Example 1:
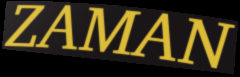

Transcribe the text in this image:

ZAMAN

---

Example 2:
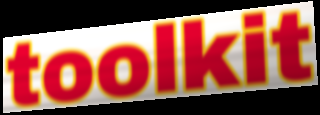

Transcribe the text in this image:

toolkit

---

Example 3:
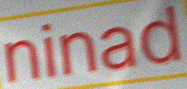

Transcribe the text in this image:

ninad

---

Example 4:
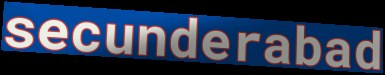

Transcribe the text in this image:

secunderabad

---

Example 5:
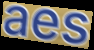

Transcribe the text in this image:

aes